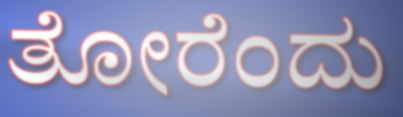
ತೋರೆಂದು